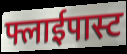
फ्लाईपास्ट